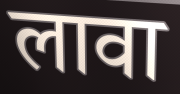
लावा